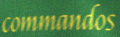
commandos